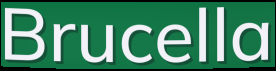
Brucella